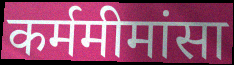
कर्ममीमांसा